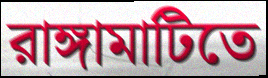
রাঙ্গামাটিতে